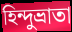
হিন্দুভ্রাতা